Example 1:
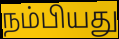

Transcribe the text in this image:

நம்பியது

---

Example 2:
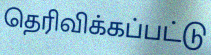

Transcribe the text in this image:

தெரிவிக்கப்பட்டு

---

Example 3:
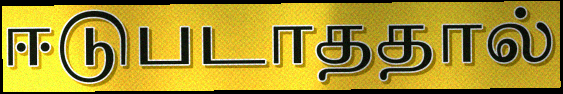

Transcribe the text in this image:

ஈடுபடாததால்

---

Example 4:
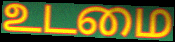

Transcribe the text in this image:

உடமை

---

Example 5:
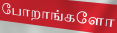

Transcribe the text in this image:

போறாங்களோ